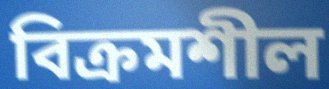
বিক্ৰমশীল